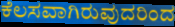
ಕೆಲಸವಾಗಿರುವುದರಿಂದ